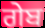
ਗੇਬ